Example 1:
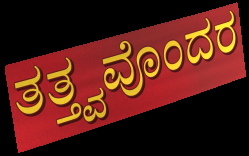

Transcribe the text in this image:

ತತ್ತ್ವವೊಂದರ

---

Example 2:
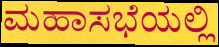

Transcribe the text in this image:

ಮಹಾಸಭೆಯಲ್ಲಿ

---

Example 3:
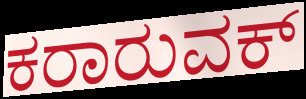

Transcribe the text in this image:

ಕರಾರುವಕ್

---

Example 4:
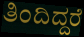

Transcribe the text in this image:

ತಿಂದಿದ್ದರೆ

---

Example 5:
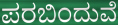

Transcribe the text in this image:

ಪರಬಿಂದುವೆ